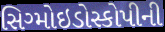
સિગ્મોઇડોસ્કોપીની